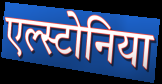
एल्स्टोनिया